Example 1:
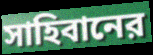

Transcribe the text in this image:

সাহিবানের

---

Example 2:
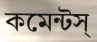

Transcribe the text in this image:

কমেন্টস্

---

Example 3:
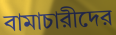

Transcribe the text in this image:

বামাচারীদের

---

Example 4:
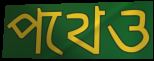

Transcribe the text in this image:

পথেও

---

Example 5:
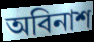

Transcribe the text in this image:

অবিনাশ